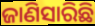
ଜାଣିସାରିଛି